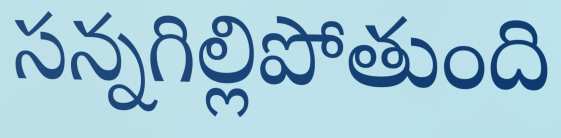
సన్నగిల్లిపోతుంది